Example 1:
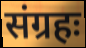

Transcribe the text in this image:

संग्रहः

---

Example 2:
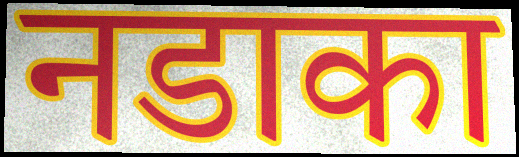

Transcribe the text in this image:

नडाका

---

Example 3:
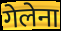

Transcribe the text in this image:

गेलेना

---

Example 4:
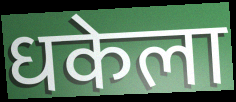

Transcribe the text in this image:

धकेला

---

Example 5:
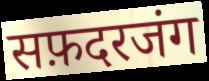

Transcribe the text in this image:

सफ़दरजंग